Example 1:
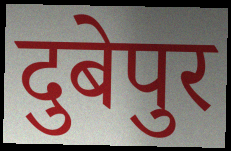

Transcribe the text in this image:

दुबेपुर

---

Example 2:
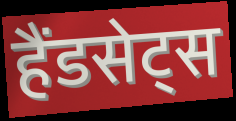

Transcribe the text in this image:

हैंडसेट्स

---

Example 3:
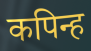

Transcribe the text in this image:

कपिन्ह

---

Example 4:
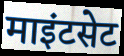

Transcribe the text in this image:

माइंटसेट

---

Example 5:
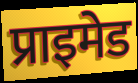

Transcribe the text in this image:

प्राइमेड